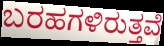
ಬರಹಗಳಿರುತ್ತವೆ